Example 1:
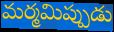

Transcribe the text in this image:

మర్మమిప్పుడు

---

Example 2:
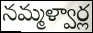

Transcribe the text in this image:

నమ్మళ్వార్ల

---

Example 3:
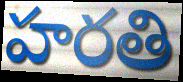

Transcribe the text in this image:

హరతి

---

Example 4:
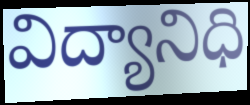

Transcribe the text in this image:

విద్యానిధి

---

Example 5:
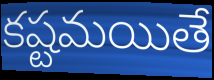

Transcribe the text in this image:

కష్టమయితే